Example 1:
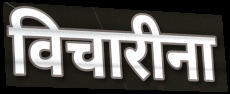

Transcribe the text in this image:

विचारीना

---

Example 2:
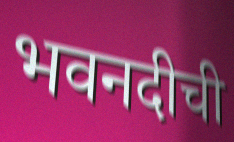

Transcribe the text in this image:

भवनदीची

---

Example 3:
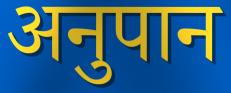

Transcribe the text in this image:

अनुपान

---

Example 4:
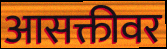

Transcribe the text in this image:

आसक्तीवर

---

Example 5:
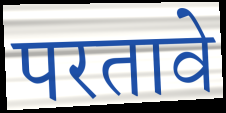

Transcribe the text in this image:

परतावे